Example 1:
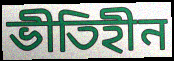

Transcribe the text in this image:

ভীতিহীন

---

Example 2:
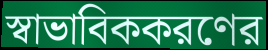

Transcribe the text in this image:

স্বাভাবিককরণের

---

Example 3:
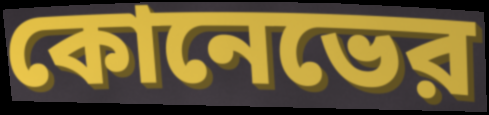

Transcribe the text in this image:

কোনেভের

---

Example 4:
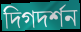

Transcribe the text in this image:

দিগদর্শন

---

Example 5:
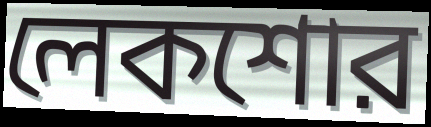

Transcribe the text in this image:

লেকশোর